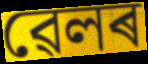
ৱেলৰ